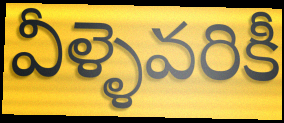
వీళ్ళెవరికీ